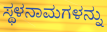
ಸ್ಥಳನಾಮಗಳನ್ನು